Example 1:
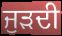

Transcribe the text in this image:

ਜੁੜਦੀ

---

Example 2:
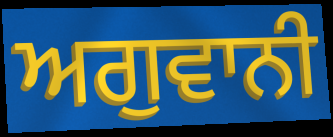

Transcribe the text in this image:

ਅਗੁਵਾਨੀ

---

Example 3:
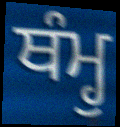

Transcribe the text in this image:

ਥੰਮ੍ਹ੍ਹੁ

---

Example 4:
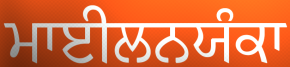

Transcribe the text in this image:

ਮਾਈਲਨਯੰਕਾ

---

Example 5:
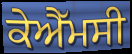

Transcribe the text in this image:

ਕੇਐੱਮਸੀ